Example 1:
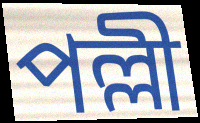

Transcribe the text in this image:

পল্লী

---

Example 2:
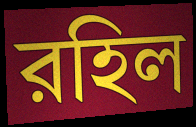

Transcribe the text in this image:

রহিল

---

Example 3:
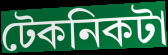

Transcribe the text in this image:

টেকনিকটা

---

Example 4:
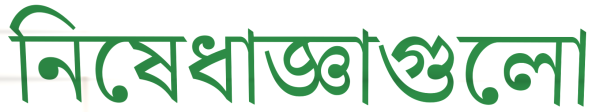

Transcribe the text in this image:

নিষেধাজ্ঞাগুলো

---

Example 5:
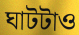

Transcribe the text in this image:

ঘাটটাও